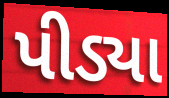
પીડ્યા